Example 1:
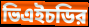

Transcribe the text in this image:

ভিএইচডির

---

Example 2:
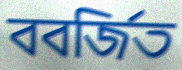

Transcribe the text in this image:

ববর্জিত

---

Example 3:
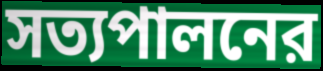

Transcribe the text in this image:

সত্যপালনের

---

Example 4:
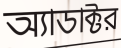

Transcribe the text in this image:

অ্যাডাক্টর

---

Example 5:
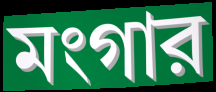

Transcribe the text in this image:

মংগার